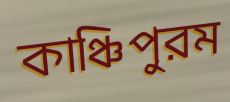
কাঞ্চিপুরম